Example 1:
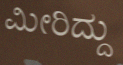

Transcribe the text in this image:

ಮೀರಿದ್ದು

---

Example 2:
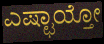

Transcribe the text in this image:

ಎಷ್ಟಾಯ್ತೋ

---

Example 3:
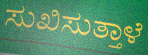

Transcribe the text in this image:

ಸುಖಿಸುತ್ತಾಳೆ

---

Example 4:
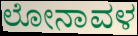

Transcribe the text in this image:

ಲೋನಾವಳ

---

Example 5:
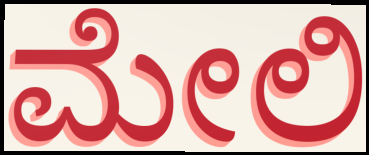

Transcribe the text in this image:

ಮೇಲಿ